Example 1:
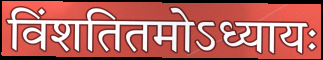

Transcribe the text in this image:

विंशतितमोऽध्यायः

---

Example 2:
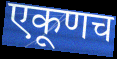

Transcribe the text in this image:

एकूणच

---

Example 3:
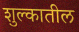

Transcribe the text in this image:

शुल्कातील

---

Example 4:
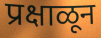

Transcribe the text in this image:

प्रक्षाळून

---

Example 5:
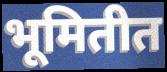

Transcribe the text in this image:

भूमितीत